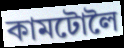
কামটোলৈ